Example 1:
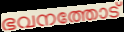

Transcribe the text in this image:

ഭവനത്തോട്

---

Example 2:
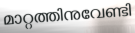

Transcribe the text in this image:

മാറ്റത്തിനുവേണ്ടി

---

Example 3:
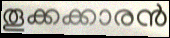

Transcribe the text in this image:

തൂക്കക്കാരൻ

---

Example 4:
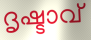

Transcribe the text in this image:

ദൃഷ്ടാവ്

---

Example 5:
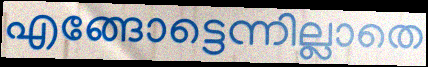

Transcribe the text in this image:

എങ്ങോട്ടെന്നില്ലാതെ